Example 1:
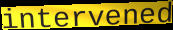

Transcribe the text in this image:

intervened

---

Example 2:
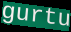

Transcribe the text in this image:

gurtu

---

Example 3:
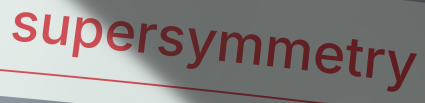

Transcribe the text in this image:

supersymmetry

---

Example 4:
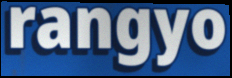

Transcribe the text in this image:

rangyo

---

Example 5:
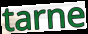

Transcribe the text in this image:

tarne